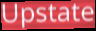
Upstate